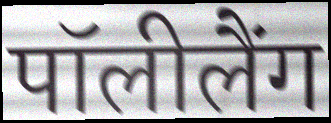
पॉलीलैंग